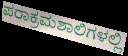
ಪರಾಕ್ರಮಶಾಲಿಗಳಲ್ಲಿ